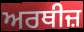
ਅਰਥੀਜ਼